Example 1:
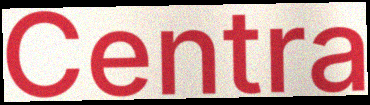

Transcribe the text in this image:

Centra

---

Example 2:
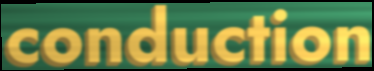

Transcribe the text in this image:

conduction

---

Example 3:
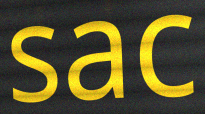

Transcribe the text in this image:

sac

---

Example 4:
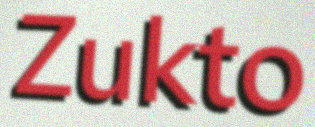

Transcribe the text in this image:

Zukto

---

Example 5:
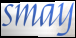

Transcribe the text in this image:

smay